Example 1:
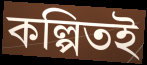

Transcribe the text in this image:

কল্পিতই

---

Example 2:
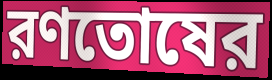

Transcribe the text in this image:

রণতোষের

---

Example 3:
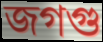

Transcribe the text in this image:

জগগু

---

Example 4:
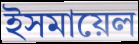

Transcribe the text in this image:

ইসমায়েল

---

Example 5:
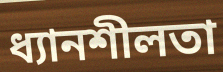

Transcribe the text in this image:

ধ্যানশীলতা